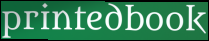
printedbook